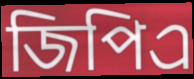
জিপিএ